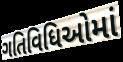
ગતિવિધિઓમાં